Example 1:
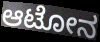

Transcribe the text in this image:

ಆಟೋನ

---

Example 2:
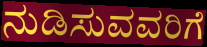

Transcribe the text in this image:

ನುಡಿಸುವವರಿಗೆ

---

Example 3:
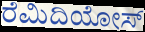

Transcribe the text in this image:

ರೆಮಿದಿಯೋಸ್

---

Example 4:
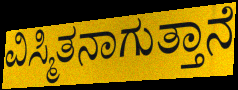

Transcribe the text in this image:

ವಿಸ್ಮಿತನಾಗುತ್ತಾನೆ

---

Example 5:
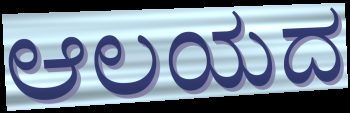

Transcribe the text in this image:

ಆಲಯದ